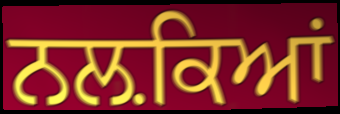
ਨਲ਼ਕਿਆਂ